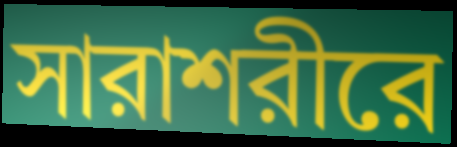
সারাশরীরে